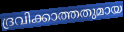
ദ്രവിക്കാത്തതുമായ